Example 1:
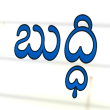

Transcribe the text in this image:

బుద్ధి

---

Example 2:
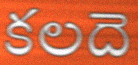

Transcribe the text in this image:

కలదె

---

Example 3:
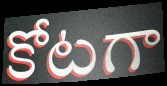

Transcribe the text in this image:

కోటగా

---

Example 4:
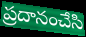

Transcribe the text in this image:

ప్రదానంచేసి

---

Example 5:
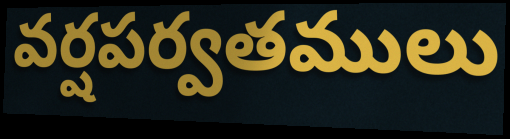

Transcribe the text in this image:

వర్షపర్వతములు